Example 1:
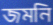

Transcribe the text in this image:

জমনি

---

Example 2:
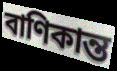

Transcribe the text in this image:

বাণিকান্ত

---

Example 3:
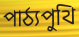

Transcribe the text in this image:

পাঠ্যপুথি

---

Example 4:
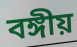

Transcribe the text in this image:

বঙ্গীয়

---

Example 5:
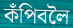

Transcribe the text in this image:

কঁপিবলৈ